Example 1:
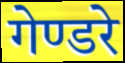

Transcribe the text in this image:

गेण्डरे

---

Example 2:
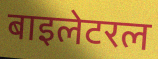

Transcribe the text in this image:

बाइलेटरल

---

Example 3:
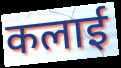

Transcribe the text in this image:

कलाई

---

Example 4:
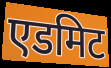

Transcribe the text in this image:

एडमिट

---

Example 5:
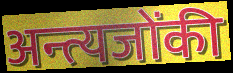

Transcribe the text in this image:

अन्त्यजोंकी